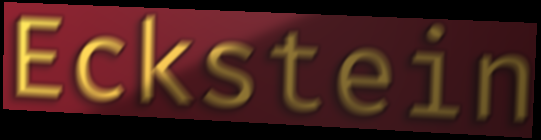
Eckstein